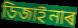
ডিজাইনাৰ